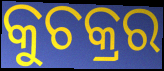
କୁଚକ୍ରର